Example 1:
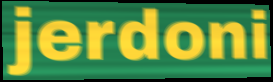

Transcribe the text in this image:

jerdoni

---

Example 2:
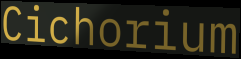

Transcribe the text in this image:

Cichorium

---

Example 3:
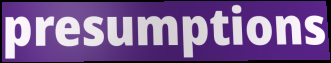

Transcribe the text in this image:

presumptions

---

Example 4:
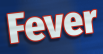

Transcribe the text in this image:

Fever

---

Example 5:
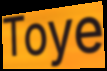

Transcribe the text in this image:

Toye